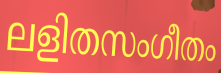
ലളിതസംഗീതം